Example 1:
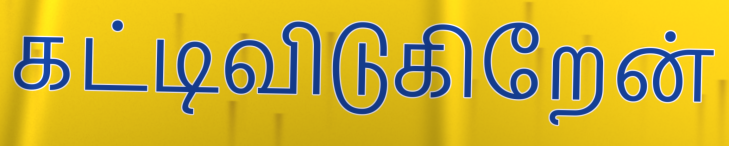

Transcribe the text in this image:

கட்டிவிடுகிறேன்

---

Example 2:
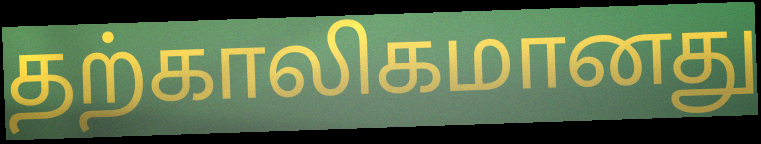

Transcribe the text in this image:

தற்காலிகமானது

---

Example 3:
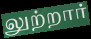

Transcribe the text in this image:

லுற்றார்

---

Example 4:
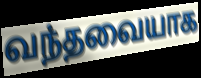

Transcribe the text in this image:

வந்தவையாக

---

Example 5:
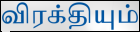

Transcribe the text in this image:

விரக்தியும்